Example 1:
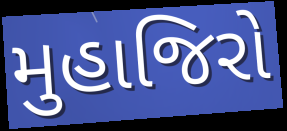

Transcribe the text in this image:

મુહાજિરો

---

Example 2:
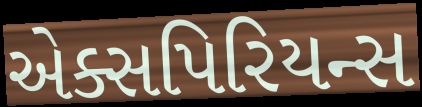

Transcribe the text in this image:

એક્સપિરિયન્સ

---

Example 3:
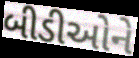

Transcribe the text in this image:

બીડીઓને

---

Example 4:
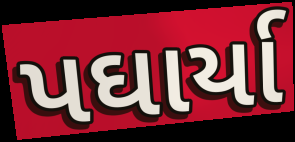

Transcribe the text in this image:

પઘાર્યા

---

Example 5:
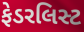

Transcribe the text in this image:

ફેડરલિસ્ટ